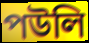
পউলি